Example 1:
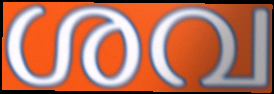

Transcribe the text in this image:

ശവ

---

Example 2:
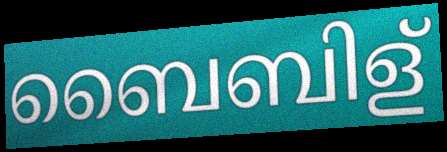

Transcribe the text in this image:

ബൈബിള്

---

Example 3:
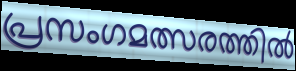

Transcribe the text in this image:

പ്രസംഗമത്സരത്തിൽ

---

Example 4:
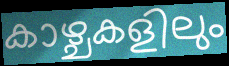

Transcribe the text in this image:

കാഴ്ചകളിലും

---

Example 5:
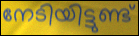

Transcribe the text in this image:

നേടിയിട്ടുണ്ട്